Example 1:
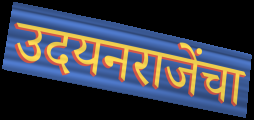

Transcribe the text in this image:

उदयनराजेंचा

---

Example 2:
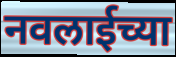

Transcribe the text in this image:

नवलाईच्या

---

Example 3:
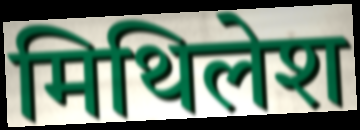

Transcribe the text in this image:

मिथिलेश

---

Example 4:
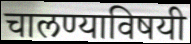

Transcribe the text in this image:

चालण्याविषयी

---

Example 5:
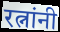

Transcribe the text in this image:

रत्नांनी